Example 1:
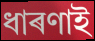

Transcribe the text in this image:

ধাৰণাই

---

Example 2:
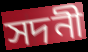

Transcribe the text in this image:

সদনী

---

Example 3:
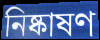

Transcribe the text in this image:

নিষ্কাষণ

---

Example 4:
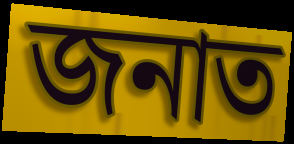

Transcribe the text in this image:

জনাত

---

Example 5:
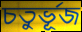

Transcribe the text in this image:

চতুৰ্ভূজ